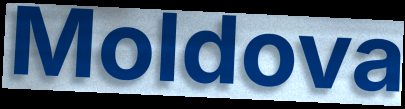
Moldova